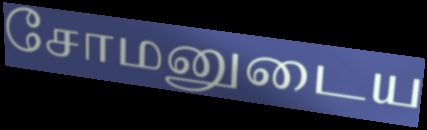
சோமனுடைய